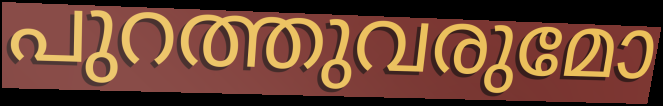
പുറത്തുവരുമോ